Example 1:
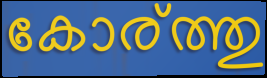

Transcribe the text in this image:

കോര്ത്തു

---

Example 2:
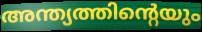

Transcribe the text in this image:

അന്ത്യത്തിന്റെയും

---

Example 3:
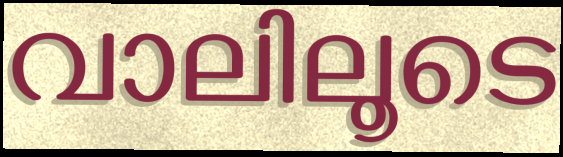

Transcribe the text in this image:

വാലിലൂടെ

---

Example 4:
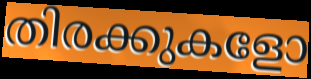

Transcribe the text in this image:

തിരക്കുകളോ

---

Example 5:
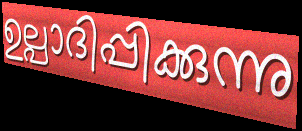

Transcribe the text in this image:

ഉല്പാദിപ്പിക്കുന്നു